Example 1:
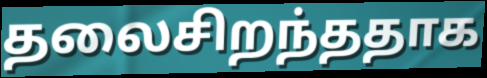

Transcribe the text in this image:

தலைசிறந்ததாக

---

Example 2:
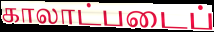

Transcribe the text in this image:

காலாட்படைப்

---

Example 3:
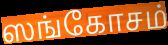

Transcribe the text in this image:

ஸங்கோசம்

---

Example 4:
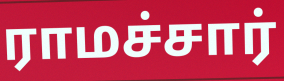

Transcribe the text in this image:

ராமச்சார்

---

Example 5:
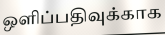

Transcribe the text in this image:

ஒளிப்பதிவுக்காக